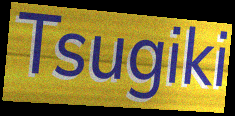
Tsugiki